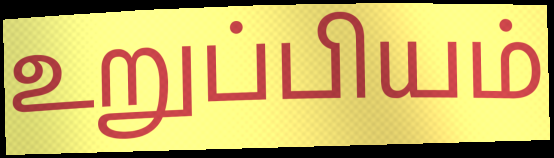
உறுப்பியம்